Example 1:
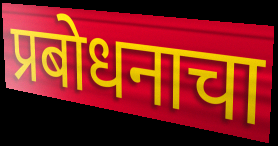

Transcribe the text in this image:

प्रबोधनाचा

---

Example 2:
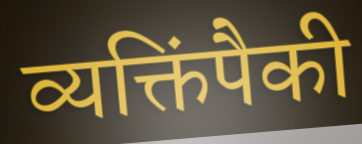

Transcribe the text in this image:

व्यक्तिंपैकी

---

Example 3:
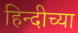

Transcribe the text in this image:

हिन्दीच्या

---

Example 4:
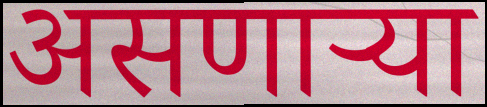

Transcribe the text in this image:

असणार्‍या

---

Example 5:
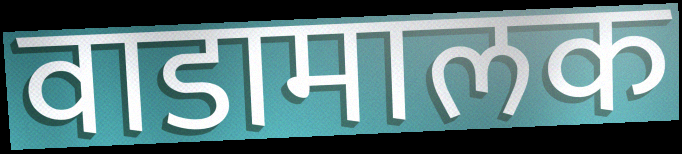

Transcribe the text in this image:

वाडामालक